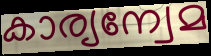
കാര്യന്വേമ